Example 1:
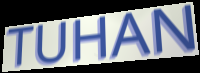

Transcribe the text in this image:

TUHAN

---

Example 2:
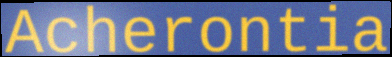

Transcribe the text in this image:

Acherontia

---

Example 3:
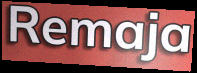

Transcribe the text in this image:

Remaja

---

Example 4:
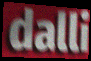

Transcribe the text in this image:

dalli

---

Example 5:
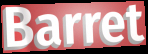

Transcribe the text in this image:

Barret